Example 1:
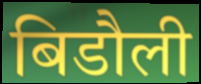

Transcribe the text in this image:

बिडौली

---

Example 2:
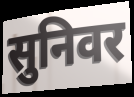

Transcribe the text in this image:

सुनिवर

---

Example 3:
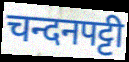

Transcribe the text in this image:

चन्दनपट्टी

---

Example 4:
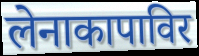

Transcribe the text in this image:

लेनाकापाविर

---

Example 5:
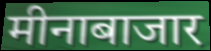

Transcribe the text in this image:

मीनाबाजार